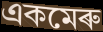
একমেৰু